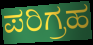
ಪರಿಗ್ರಹ